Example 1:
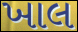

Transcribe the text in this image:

ખાલ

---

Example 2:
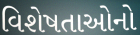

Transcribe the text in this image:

વિશેષતાઓનો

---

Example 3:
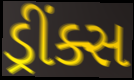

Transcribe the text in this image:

ડ્રીંક્સ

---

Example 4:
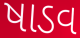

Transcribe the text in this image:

ષાડવ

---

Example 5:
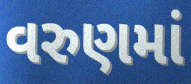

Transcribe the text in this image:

વરુણમાં